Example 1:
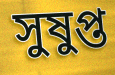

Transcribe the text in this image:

সুষুপ্ত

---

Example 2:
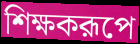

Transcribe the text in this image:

শিক্ষকরূপে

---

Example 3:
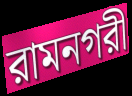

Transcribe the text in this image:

রামনগরী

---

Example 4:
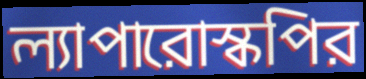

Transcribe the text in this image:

ল্যাপারোস্কপির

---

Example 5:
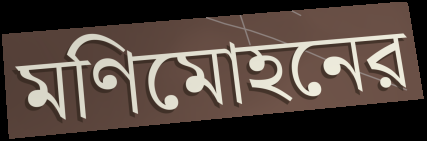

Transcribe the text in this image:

মণিমোহনের